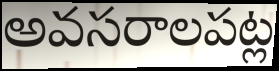
అవసరాలపట్ల